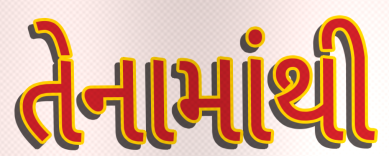
તેનામાંથી